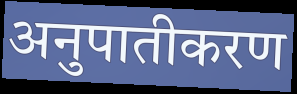
अनुपातीकरण